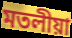
মতলীয়া